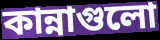
কান্নাগুলো